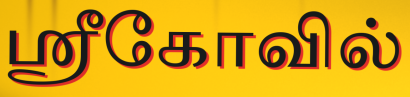
ஸ்ரீகோவில்